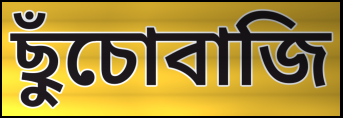
ছুঁচোবাজি